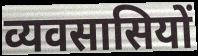
व्यवसासियों